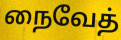
நைவேத்